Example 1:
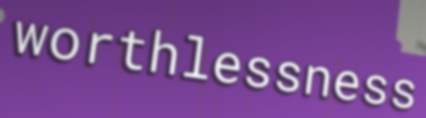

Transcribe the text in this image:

worthlessness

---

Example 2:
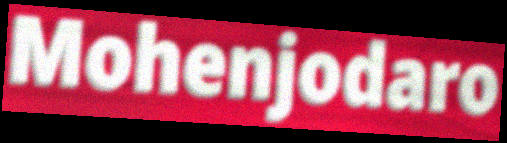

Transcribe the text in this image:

Mohenjodaro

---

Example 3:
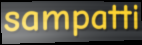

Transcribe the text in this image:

sampatti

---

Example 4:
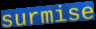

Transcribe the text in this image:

surmise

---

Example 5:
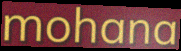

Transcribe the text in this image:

mohana